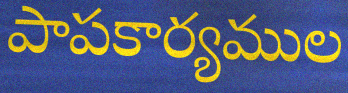
పాపకార్యముల